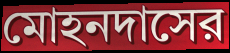
মোহনদাসের